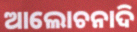
ଆଲୋଚନାଦି